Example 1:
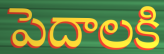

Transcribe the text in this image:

పెదాలకి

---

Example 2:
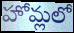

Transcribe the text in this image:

హోమ్లలో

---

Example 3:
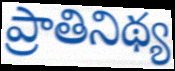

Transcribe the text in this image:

ప్రాతినిథ్య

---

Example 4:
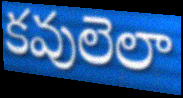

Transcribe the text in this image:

కవులెలా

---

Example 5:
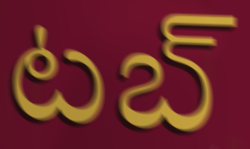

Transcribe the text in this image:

టబ్